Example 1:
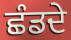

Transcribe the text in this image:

ਛੰਡਦੇ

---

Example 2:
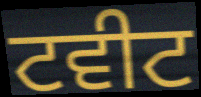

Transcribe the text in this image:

ਟਵੀਟ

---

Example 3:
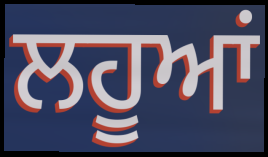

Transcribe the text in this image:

ਲਹੂਆਂ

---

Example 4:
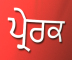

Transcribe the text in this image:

ਪ੍ਰੇਰਕ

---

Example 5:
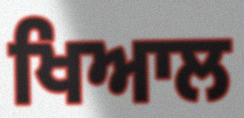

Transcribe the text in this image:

ਖਿਆਲ